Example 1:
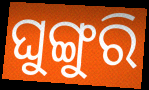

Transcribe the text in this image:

ଘୁଙ୍ଗୁରି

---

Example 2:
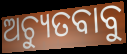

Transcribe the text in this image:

ଅଚ୍ୟୁତବାବୁ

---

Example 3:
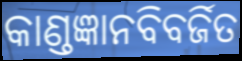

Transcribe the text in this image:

କାଣ୍ଡଜ୍ଞାନବିବର୍ଜିତ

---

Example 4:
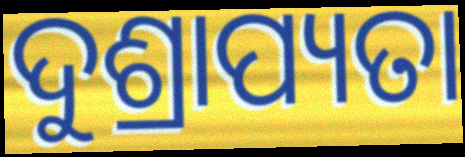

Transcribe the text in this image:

ଦୁଶ୍ରାପ୍ୟତା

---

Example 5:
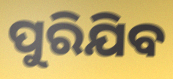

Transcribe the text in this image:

ପୁରିଯିବ